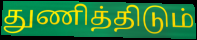
துணித்திடும்